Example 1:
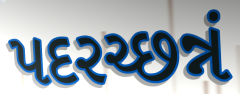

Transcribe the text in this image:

પદરચ્છન્નં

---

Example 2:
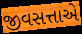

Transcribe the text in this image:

જીવસત્તાએ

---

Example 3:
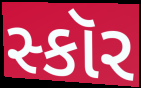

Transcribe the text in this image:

સ્કૉર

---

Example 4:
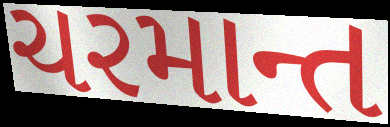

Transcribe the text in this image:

ચરમાન્ત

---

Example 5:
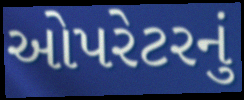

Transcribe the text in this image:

ઓપરેટરનું